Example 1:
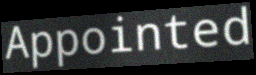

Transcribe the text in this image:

Appointed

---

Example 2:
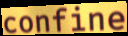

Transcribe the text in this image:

confine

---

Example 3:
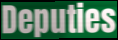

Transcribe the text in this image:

Deputies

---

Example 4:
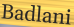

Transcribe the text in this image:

Badlani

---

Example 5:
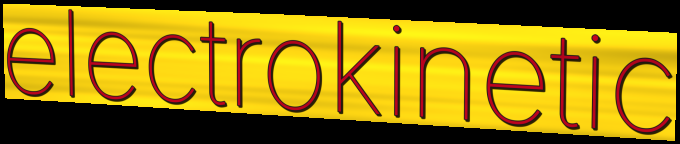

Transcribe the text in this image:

electrokinetic